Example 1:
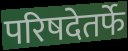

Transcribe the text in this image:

परिषदेतर्फे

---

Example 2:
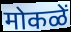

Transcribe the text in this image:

मोकळें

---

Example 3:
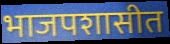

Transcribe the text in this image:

भाजपशासीत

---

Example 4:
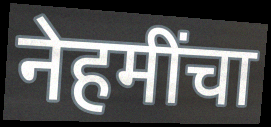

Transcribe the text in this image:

नेहमींचा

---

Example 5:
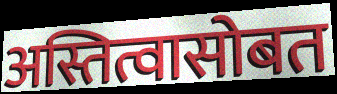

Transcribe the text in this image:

अस्तित्वासोबत